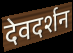
देवदर्शन